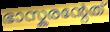
ഭാസ്കരന്റേത്